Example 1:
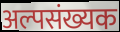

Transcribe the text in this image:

अल्‍पसंख्‍यक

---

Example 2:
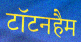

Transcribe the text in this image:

टॉटनहैम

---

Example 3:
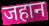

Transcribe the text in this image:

जहान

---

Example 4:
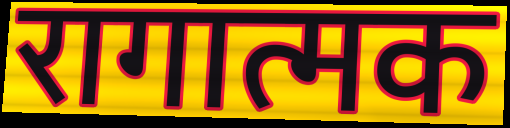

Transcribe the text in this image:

रागात्मक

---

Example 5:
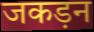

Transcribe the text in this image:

जकड़न